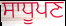
ਸਾਧੂਪਣ